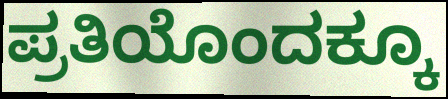
ಪ್ರತಿಯೊಂದಕ್ಕೂ